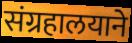
संग्रहालयाने